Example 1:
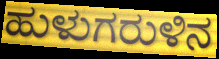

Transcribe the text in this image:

ಹುಳುಗರುಳಿನ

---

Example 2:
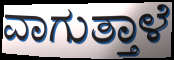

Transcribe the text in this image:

ವಾಗುತ್ತಾಳೆ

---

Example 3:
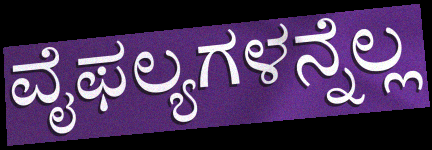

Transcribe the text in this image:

ವೈಫಲ್ಯಗಳನ್ನೆಲ್ಲ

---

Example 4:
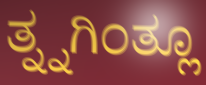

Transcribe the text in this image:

ತ್ನ್ನಗಿಂತ್ಲೂ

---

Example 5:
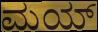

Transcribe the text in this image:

ಮಯ್